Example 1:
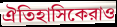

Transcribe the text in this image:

ঐতিহাসিকেরাও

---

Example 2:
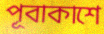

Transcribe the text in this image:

পূবাকাশে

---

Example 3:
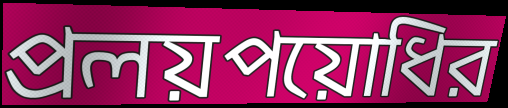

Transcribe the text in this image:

প্রলয়পয়োধির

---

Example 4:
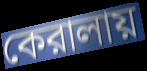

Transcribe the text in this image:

কেরালায়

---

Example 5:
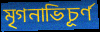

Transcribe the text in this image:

মৃগনাভিচূর্ণ